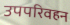
उपपरिवहन